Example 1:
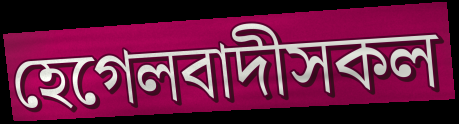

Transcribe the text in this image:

হেগেলবাদীসকল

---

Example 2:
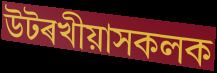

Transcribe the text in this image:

উটৰখীয়াসকলক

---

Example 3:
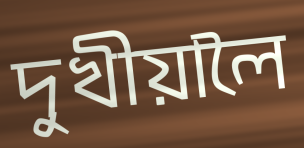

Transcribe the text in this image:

দুখীয়ালৈ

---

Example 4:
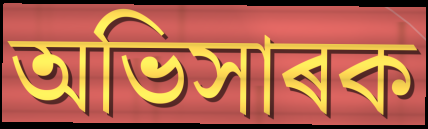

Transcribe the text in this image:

অভিসাৰক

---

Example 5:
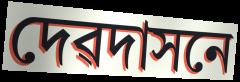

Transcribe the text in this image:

দেৱদাসনে